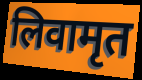
लिवामृत